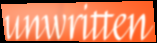
unwritten